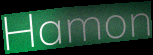
Hamon